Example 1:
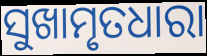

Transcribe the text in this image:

ସୁଖାମୃତଧାରା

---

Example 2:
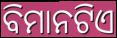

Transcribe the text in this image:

ବିମାନଟିଏ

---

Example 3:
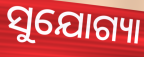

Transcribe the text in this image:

ସୁଯୋଗ୍ୟା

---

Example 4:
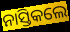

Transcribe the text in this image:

ନାସ୍ତିକଲେ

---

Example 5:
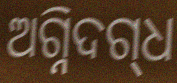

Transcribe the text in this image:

ଅଗ୍ନିଦଗ୍‌ଧ